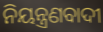
ନିୟନ୍ତ୍ରଣବାଦୀ